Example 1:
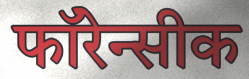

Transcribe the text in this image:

फॉरेन्सीक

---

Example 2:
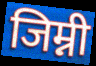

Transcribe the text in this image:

जिम्नी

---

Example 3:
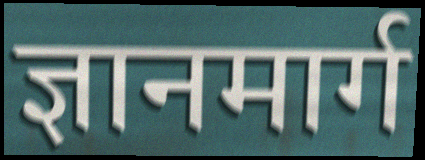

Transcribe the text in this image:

ज्ञानमार्ग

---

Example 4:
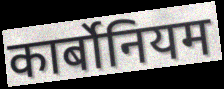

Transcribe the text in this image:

कार्बोनियम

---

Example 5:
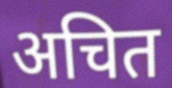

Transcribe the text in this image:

अचित